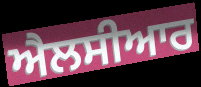
ਐਲਸੀਆਰ